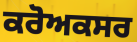
ਕਰੋਅਕਸਰ